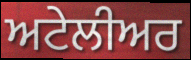
ਅਟੇਲੀਅਰ